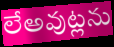
లేఅవుట్లను